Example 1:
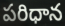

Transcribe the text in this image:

పరిధాన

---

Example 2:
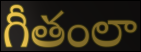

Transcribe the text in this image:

గీతంలా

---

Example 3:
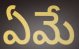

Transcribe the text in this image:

ఏమే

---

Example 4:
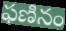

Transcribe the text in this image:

ఫణినం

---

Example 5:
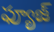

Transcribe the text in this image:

ఫ్యూజ్